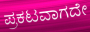
ಪ್ರಕಟವಾಗದೇ